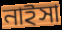
নাইসা